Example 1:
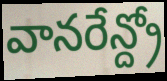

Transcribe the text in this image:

వానరేన్ద్రో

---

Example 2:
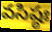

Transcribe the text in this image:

వసిష్ఠః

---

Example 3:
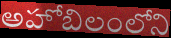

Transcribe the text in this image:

అహోబిలంలోని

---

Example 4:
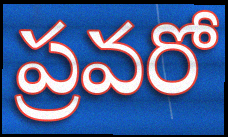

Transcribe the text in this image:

ప్రవరో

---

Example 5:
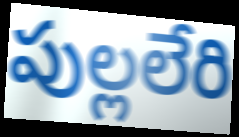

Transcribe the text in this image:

పుల్లలేరి